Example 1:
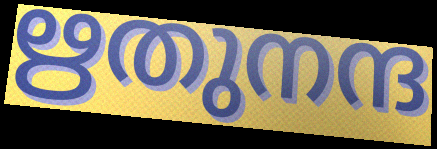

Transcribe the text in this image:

ഋതുനന്ദ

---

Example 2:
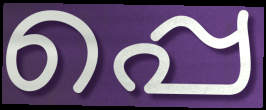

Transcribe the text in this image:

പ്പെ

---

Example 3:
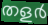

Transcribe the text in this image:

തളർ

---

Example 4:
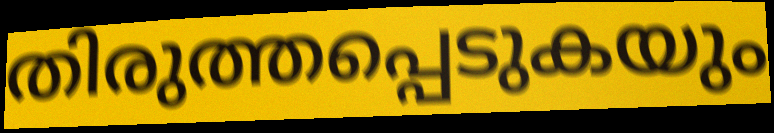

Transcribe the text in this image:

തിരുത്തപ്പെടുകയും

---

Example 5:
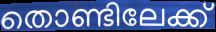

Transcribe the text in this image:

തൊണ്ടിലേക്ക്